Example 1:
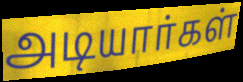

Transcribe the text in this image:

அடியார்கள்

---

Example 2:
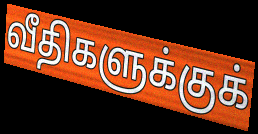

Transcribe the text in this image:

வீதிகளுக்குக்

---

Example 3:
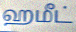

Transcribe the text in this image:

ஹமீட்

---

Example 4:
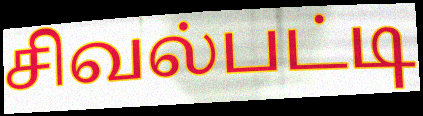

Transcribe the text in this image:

சிவல்பட்டி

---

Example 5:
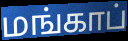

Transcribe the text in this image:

மங்காப்